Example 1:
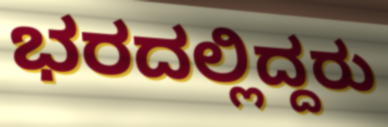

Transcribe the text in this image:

ಭರದಲ್ಲಿದ್ದರು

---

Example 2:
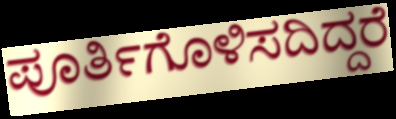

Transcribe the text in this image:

ಪೂರ್ತಿಗೊಳಿಸದಿದ್ದರೆ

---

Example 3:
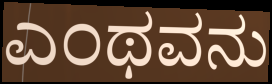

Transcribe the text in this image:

ಎಂಥವನು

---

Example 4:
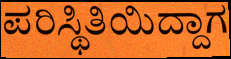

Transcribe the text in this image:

ಪರಿಸ್ಥಿತಿಯಿದ್ದಾಗ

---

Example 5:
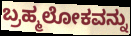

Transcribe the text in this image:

ಬ್ರಹ್ಮಲೋಕವನ್ನು